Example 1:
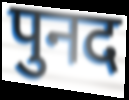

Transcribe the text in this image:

पुनद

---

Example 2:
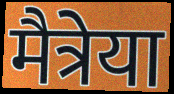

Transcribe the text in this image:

मैत्रेया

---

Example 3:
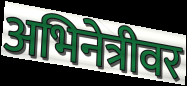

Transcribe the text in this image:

अभिनेत्रीवर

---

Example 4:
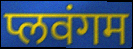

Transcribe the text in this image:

प्लवंगम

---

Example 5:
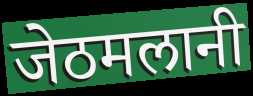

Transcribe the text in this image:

जेठमलानी